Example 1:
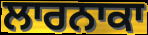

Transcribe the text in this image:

ਲਾਰਨਾਕਾ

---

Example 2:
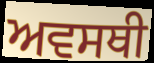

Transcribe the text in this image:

ਅਵਸਥੀ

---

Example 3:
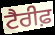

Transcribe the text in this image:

ਟੈਰੀਫ਼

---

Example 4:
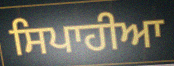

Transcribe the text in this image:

ਸਿਪਾਹੀਆ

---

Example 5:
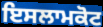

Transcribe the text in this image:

ਇਸਲਾਮਕੋਟ